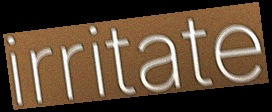
irritate